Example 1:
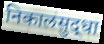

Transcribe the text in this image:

निकालसुद्धा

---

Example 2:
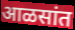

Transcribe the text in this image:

आळसांत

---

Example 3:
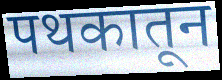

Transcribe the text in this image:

पथकातून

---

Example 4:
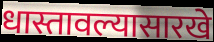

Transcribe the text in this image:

धास्तावल्यासारखे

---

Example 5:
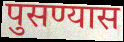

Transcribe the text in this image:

पुसण्यास